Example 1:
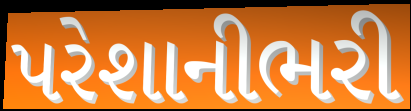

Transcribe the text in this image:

પરેશાનીભરી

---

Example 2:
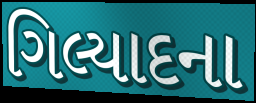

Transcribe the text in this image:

ગિલ્યાદના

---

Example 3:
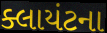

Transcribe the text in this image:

ક્લાયંટના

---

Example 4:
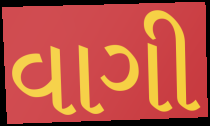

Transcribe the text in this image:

વાગી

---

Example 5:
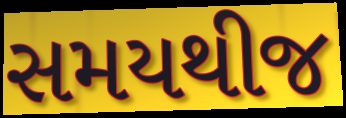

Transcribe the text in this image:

સમયથીજ